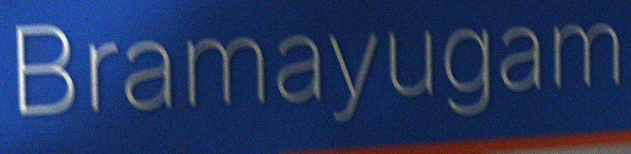
Bramayugam